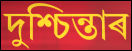
দুশ্চিন্তাৰ